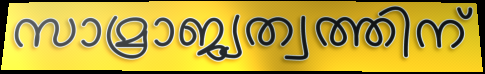
സാമ്രാജ്യത്വത്തിന്